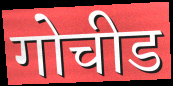
गोचीड